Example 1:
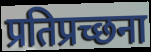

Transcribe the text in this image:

प्रतिप्रच्छना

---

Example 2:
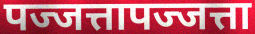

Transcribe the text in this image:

पज्जत्तापज्जत्ता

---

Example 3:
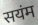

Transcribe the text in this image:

सयंम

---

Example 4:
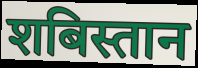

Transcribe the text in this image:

शबिस्तान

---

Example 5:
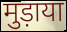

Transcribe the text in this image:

मुड़ाया